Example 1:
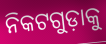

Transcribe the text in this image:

ନିକଟଗୁଡ଼ାକୁ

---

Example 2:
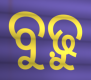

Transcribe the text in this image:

ବୁଢ଼ୁ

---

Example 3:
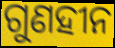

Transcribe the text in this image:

ଗୁଣହୀନ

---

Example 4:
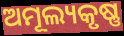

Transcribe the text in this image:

ଅମୂଲ୍ୟକୃଷ୍ଣ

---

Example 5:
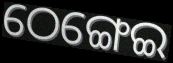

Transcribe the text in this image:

ଠେଙ୍ଗେଇ